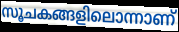
സൂചകങ്ങളിലൊന്നാണ്